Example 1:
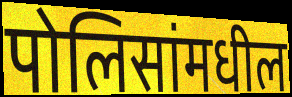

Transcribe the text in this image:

पोलिसांमधील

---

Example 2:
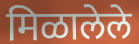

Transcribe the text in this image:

मिळालेले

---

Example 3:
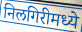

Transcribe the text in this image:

निलगिरीमध्ये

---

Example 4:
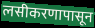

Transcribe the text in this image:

लसीकरणापासून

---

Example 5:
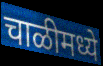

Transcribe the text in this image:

चाळीमध्ये